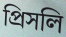
প্রিসলি